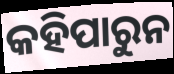
କହିପାରୁନ